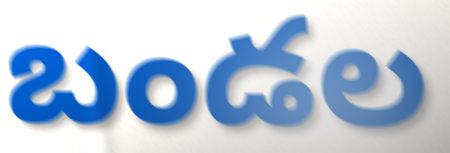
బండల